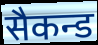
सैकन्ड